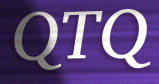
QTQ